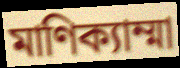
মাণিক্যাম্মা